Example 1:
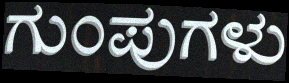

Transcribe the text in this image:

ಗುಂಪುಗಳು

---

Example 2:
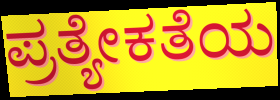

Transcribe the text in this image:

ಪ್ರತ್ಯೇಕತೆಯ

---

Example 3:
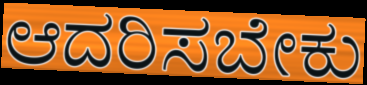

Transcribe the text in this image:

ಆದರಿಸಬೇಕು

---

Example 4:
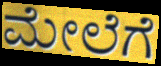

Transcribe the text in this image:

ಮೇಲೆಗೆ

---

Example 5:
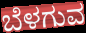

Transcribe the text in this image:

ಬೆಳಗುವ